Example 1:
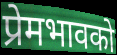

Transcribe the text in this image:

प्रेमभावको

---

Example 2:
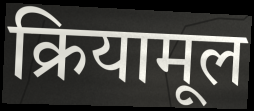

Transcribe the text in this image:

क्रियामूल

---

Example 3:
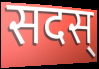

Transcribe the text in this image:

सदस्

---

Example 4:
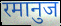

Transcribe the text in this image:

रमानुज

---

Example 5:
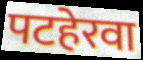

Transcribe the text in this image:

पटहेरवा